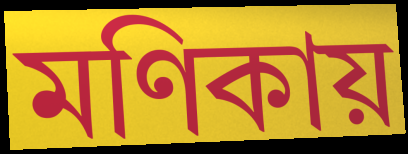
মণিকায়